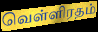
வெள்ளிரதம்